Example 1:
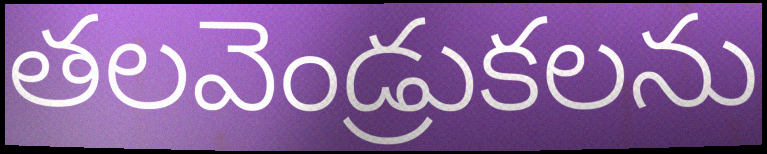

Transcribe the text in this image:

తలవెండ్రుకలను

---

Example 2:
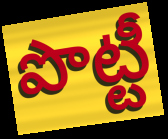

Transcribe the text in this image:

పొట్టీ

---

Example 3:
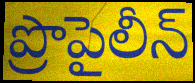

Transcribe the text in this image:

ప్రొపైలీన్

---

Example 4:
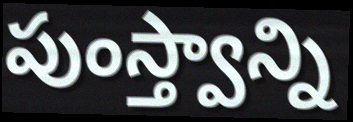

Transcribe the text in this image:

పుంస్త్వాన్ని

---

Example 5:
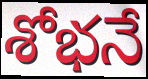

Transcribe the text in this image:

శోభనే